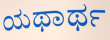
ಯಥಾರ್ಥ